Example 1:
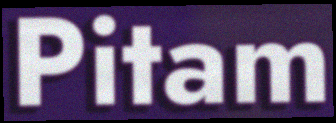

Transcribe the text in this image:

Pitam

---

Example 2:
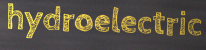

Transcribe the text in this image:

hydroelectric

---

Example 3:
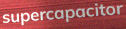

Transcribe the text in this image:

supercapacitor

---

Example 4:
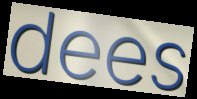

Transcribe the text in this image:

dees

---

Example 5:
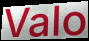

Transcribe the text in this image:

Valo